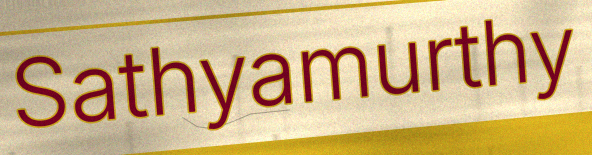
Sathyamurthy